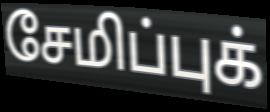
சேமிப்புக்